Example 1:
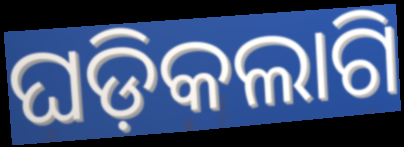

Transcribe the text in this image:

ଘଡ଼ିକଲାଗି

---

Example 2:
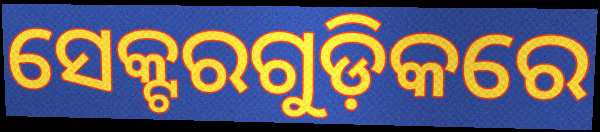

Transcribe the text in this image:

ସେକ୍ଟରଗୁଡ଼ିକରେ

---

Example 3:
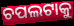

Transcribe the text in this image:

ଚପଲଟାକୁ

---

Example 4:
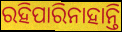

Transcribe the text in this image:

ରହିପାରିନାହାନ୍ତି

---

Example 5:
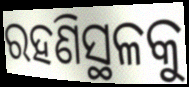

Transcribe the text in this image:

ରହଣିସ୍ଥଳକୁ